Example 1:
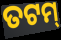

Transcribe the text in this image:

ତଟମ୍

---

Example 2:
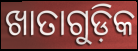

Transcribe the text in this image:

ଖାତାଗୁଡ଼ିକ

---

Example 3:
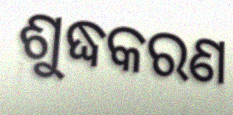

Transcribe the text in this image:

ଶୁଦ୍ଧକରଣ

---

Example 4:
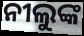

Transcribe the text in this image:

ନୀଲୁଙ୍କ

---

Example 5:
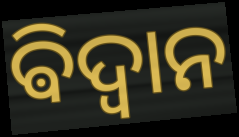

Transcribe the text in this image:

ଵିଦ୍ଵାନ